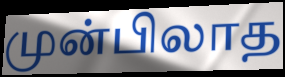
முன்பிலாத